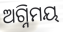
ଅଗ୍ନିମୟ